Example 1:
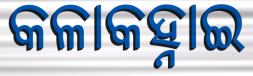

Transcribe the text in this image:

କଳାକହ୍ନାଇ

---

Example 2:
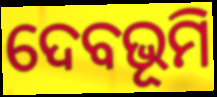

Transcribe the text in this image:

ଦେବଭୂମି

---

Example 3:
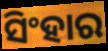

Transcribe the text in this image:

ସିଂହାର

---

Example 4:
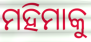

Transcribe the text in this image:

ମହିମାକୁ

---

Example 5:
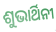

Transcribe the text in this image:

ଶୁଭାର୍ଥିନୀ